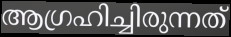
ആഗ്രഹിച്ചിരുന്നത്